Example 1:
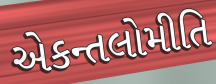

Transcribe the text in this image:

એકન્તલોમીતિ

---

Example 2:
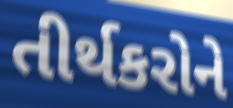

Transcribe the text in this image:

તીર્થકરોને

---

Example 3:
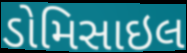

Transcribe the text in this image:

ડોમિસાઇલ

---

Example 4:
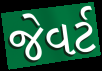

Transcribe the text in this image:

જેવર્ટ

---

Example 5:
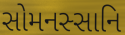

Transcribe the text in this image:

સોમનસ્સાનિ